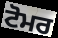
ਟੋਮਰ